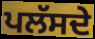
ਪਲੱਸਦੇ